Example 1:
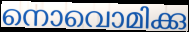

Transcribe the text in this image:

നൊവൊമിക്കു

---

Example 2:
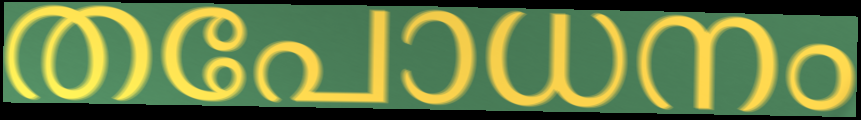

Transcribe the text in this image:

തപോധനം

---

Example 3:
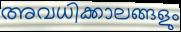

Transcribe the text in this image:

അവധിക്കാലങ്ങളും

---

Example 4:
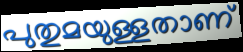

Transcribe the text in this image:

പുതുമയുള്ളതാണ്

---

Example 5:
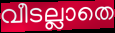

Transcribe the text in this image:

വീടല്ലാതെ